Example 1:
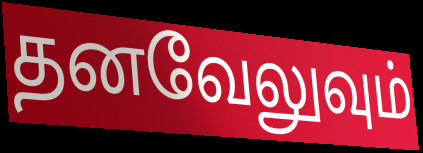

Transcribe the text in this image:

தனவேலுவும்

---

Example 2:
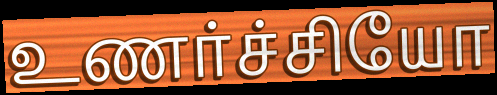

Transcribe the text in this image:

உணர்ச்சியோ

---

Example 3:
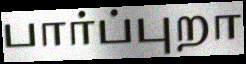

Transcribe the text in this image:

பார்ப்புறா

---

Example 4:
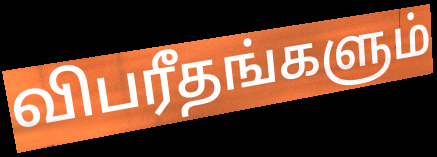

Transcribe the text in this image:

விபரீதங்களும்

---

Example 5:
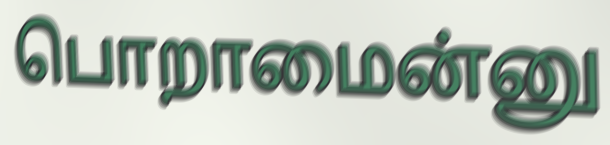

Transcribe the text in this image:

பொறாமைன்னு